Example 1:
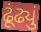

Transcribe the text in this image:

ઢૂંઢ્યું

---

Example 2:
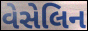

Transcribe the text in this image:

વેસેલિન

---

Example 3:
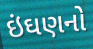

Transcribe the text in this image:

ઇંઘણનો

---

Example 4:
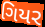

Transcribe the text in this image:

ગિયર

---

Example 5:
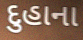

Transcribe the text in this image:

દુહાના